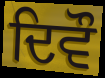
ਦਿਵੌ